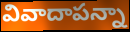
వివాదాపన్నా